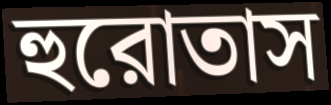
হুরোতাস